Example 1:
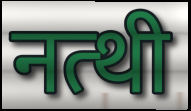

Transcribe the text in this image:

नत्‍थी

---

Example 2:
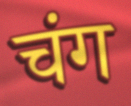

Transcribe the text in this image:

चंग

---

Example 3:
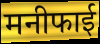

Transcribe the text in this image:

मनीफाई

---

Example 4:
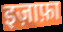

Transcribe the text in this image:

इज़ाफ़ा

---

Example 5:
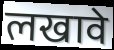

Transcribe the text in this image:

लखावे